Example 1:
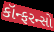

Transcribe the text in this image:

કૉન્ફરન્સો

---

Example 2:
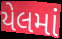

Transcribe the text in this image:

યેલમાં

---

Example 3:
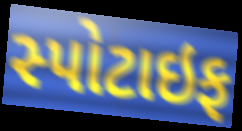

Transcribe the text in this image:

સ્પોટાઇફ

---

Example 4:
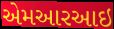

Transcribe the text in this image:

એમઆરઆઇ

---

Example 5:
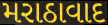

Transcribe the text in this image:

મરાઠાવાદ